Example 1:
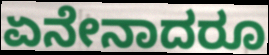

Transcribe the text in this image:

ಏನೇನಾದರೂ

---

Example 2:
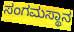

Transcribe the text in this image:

ಸಂಗಮಸ್ಥಾನ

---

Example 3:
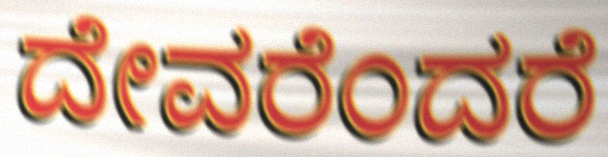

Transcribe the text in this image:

ದೇವರೆಂದರೆ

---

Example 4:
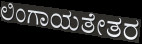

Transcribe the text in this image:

ಲಿಂಗಾಯತೇತರ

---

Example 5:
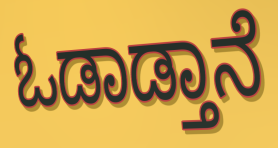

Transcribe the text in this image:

ಓಡಾಡ್ತಾನೆ